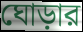
ঘোড়ার